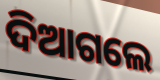
ଦିଆଗଲେ